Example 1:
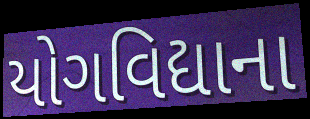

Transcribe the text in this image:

યોગવિદ્યાના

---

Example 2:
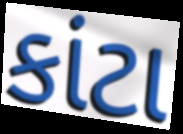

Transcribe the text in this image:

કાંટા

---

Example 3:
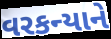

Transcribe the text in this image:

વરકન્યાને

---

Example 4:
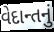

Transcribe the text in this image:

વેદાન્તનું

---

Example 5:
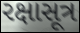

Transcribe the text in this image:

રક્ષાસૂત્ર